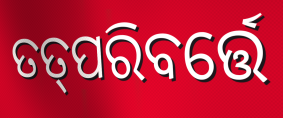
ତତ୍‌ପରିବର୍ତ୍ତେ